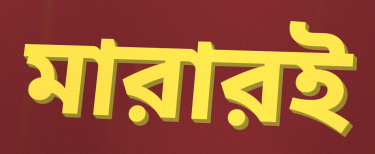
মারারই